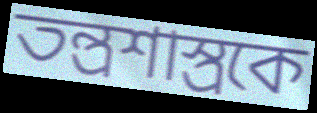
তন্ত্রশাস্ত্রকে